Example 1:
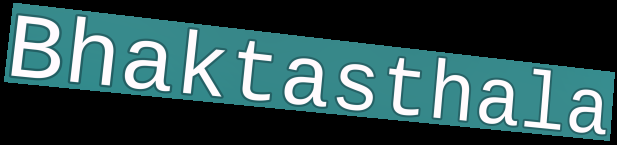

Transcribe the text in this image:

Bhaktasthala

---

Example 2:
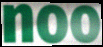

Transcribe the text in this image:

noo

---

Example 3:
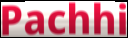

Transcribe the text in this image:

Pachhi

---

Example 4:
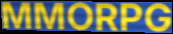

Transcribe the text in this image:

MMORPG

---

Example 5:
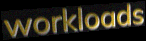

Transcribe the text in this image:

workloads